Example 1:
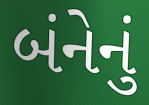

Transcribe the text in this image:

બંનેનું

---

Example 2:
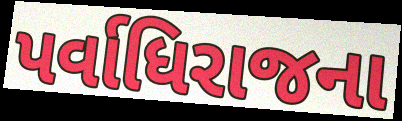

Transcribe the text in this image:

પર્વાધિરાજના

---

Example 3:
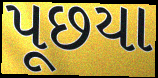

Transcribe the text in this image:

પૂછયા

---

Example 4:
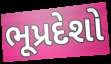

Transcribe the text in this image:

ભૂપ્રદેશો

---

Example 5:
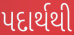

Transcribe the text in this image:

પદાર્થથી